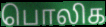
பொலிக